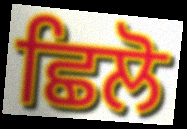
ਛਿਲੋ